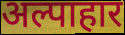
अल्पाहार